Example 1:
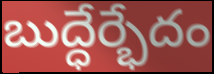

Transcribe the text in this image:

బుద్ధేర్భేదం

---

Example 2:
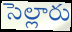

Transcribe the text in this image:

సెల్లారు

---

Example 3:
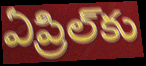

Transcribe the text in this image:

ఏప్రిల్‌కు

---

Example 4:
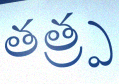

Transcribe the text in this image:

తత్ర్ప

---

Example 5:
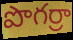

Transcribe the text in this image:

పొగర్రా